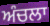
ਅੰਚਲਾ